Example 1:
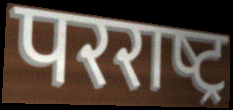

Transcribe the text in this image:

परराष्ट्र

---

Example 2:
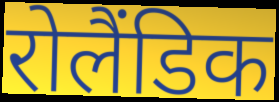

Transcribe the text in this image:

रोलैंडिक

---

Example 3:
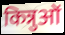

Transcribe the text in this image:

किन्नुओं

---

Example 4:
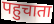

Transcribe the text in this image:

पहुचाता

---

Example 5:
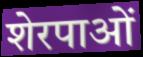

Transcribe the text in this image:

शेरपाओं